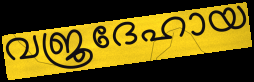
വജ്രദേഹായ